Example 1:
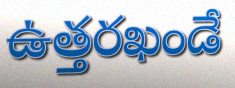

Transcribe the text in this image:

ఉత్తరఖండే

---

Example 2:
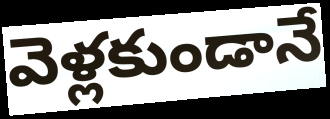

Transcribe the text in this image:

వెళ్లకుండానే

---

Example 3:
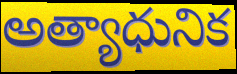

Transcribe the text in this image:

అత్యాధునిక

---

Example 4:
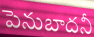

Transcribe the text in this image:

పెనుబాదనీ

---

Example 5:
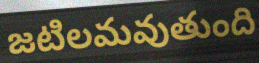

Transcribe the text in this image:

జటిలమవుతుంది